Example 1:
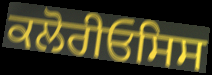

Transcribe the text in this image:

ਕਲੋਰੀਓਸਿਸ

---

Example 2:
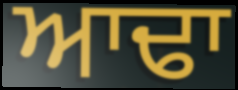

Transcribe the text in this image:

ਆਢਾ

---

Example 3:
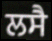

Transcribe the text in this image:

ਲਸੈ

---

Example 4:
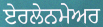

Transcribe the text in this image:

ਏਰਲੇਨਮੇਅਰ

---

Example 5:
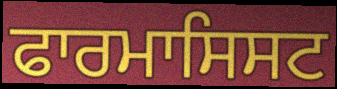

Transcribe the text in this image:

ਫਾਰਮਾਸਿਸਟ